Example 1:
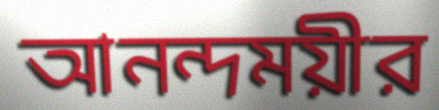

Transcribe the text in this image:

আনন্দময়ীর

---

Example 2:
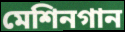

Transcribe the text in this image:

মেশিনগান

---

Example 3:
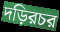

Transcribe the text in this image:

দড়িরচর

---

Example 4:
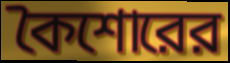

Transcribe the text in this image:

কৈশোরের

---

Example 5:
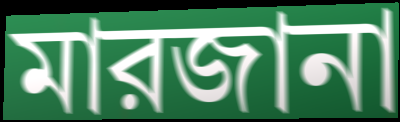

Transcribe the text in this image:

মারজানা